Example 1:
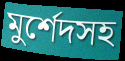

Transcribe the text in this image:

মুর্শেদসহ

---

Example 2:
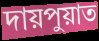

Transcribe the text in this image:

দায়পুয়াত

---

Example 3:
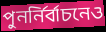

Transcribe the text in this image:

পুনর্নির্বাচনেও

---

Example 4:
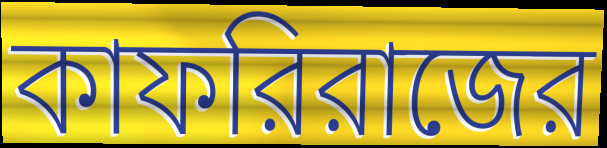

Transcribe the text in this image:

কাফরিরাজের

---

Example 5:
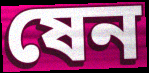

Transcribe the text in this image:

ষেন